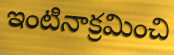
ఇంటినాక్రమించి